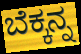
ಬೆಕ್ಕನ್ನ